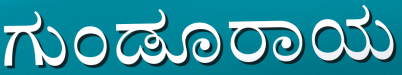
ಗುಂಡೂರಾಯ